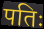
पतिः